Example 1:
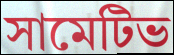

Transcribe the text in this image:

সামেটিভ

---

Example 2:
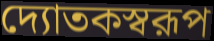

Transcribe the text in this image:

দ্যোতকস্বরূপ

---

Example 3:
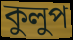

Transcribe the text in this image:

কুলুপ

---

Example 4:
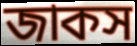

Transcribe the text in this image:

জাকস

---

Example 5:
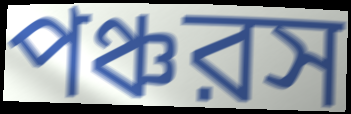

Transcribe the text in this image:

পঞ্চরস